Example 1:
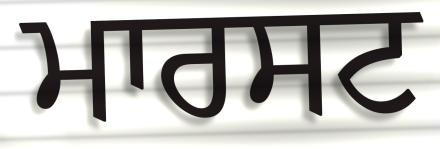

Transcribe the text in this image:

ਮਾਰਸਟ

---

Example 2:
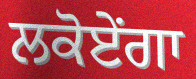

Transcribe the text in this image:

ਲਕੋਏਂਗਾ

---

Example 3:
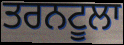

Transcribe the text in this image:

ਤਰਨਟੂਲਾ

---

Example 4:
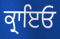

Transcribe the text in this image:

ਕ੍ਰਾਇਓ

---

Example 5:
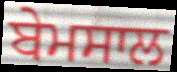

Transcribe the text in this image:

ਬੇਮਸਾਲ